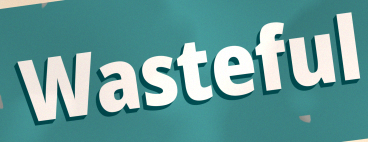
Wasteful